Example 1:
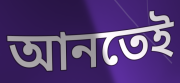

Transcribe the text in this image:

আনতেই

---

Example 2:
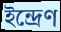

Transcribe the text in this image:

ইন্দ্রেণ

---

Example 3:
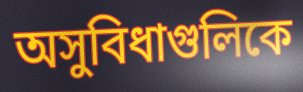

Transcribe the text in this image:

অসুবিধাগুলিকে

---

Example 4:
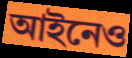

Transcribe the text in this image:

আইনেও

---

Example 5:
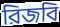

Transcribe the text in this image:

রিজবি